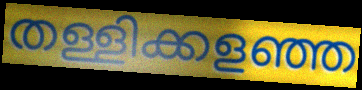
തള്ളിക്കളഞ്ഞ